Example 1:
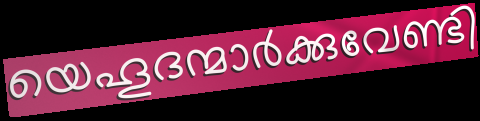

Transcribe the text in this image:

യെഹൂദന്മാർക്കുവേണ്ടി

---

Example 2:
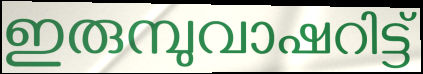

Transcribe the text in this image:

ഇരുമ്പുവാഷറിട്ട്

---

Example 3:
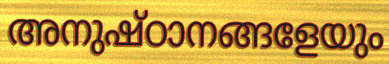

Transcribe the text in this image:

അനുഷ്ഠാനങ്ങളേയും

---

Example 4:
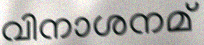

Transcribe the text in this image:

വിനാശനമ്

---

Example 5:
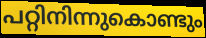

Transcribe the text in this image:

പറ്റിനിന്നുകൊണ്ടും